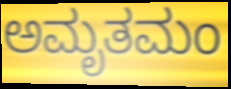
ಅಮೃತಮಂ